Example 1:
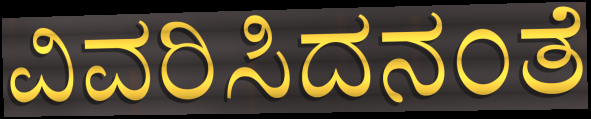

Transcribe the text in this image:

ವಿವರಿಸಿದನಂತೆ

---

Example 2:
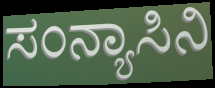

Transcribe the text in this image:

ಸಂನ್ಯಾಸಿನಿ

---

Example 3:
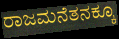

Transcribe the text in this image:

ರಾಜಮನೆತನಕ್ಕೂ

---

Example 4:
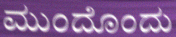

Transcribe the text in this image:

ಮುಂದೊಂದು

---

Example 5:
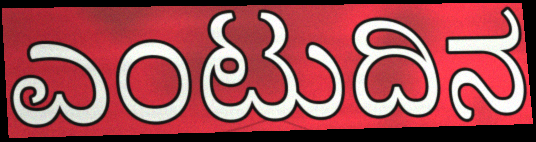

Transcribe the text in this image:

ಎಂಟುದಿನ